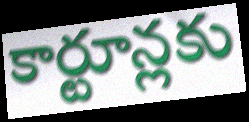
కార్టూన్లకు